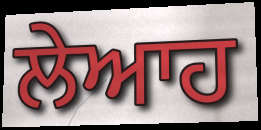
ਲੇਆਹ